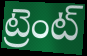
ట్రెంట్